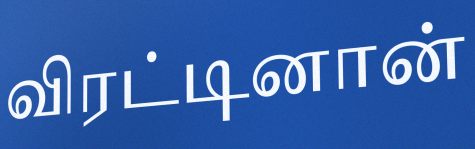
விரட்டினான்